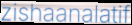
zishaanalatif